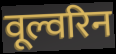
वूल्वरिन